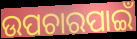
ଉପଚାରପାଇଁ